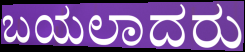
ಬಯಲಾದರು